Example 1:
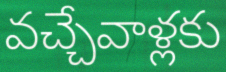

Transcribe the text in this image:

వచ్చేవాళ్లకు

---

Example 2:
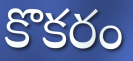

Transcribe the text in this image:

కొకరం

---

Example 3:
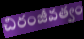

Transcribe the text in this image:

చిరంజీవత్వం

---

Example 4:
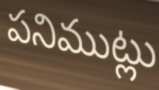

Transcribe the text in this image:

పనిముట్లు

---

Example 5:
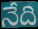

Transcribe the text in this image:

నేది